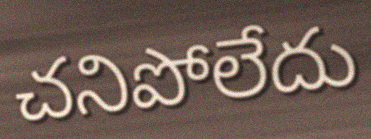
చనిపోలేదు